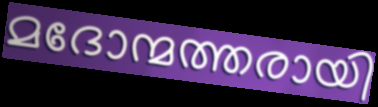
മദോന്മത്തരായി